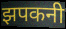
झपकनी